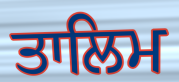
ਤਾਲਿਮ